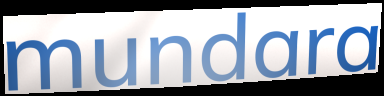
mundara